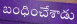
బంధించేశాడు